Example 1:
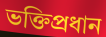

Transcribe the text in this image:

ভক্তিপ্রধান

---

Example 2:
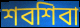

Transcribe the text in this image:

শবশিবা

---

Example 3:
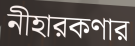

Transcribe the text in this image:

নীহারকণার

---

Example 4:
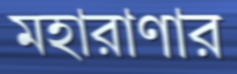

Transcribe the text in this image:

মহারাণার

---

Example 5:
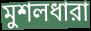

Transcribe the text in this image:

মুশলধারা